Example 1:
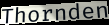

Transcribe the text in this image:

Thornden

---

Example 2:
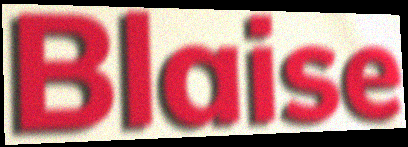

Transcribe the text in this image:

Blaise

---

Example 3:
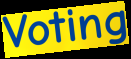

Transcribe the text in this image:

Voting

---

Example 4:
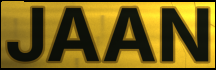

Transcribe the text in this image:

JAAN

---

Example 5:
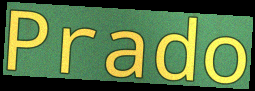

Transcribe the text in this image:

Prado